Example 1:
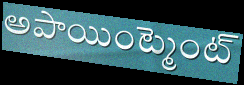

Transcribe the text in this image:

అపాయింట్మెంట్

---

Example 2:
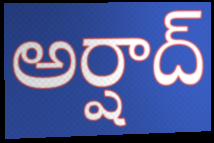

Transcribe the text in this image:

అర్షాద్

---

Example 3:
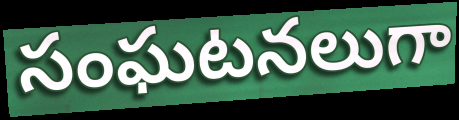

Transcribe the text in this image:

సంఘటనలుగా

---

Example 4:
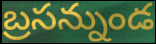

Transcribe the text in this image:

బ్రసన్నుండ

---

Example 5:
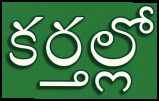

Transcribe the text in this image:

కర్తల్లో